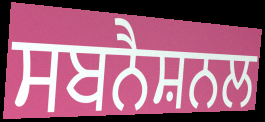
ਸਬਨੈਸ਼ਨਲ